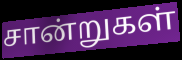
சான்றுகள்